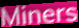
Miners